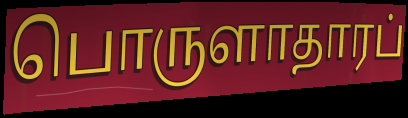
பொருளாதாரப்